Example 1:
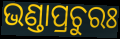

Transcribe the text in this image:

ଭଣ୍ଡାପ୍ରଚୁରଃ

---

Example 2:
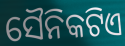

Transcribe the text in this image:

ସୈନିକଟିଏ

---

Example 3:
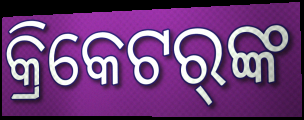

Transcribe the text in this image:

କ୍ରିକେଟର୍‌ଙ୍କ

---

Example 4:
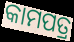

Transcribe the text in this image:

କାମପତ୍ର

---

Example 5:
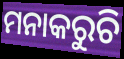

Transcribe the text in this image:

ମନାକରୁଚି